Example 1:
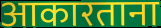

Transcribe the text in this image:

आकारताना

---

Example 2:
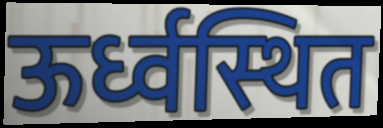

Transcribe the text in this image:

ऊर्ध्वस्थित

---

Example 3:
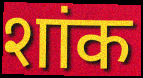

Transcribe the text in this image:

शांक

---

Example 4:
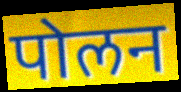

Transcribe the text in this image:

पोलन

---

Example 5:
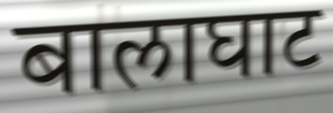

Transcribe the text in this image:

बालाघाट